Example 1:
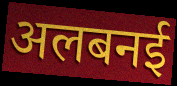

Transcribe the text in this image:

अलबनई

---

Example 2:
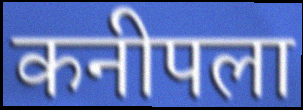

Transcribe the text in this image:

कनीपला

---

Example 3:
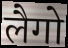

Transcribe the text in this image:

लैगो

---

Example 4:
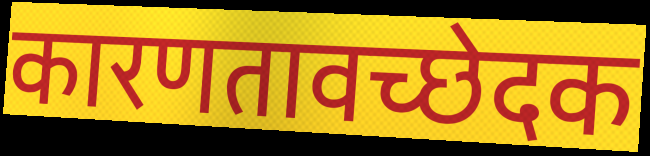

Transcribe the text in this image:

कारणतावच्छेदक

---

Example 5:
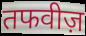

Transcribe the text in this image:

तफवीज़